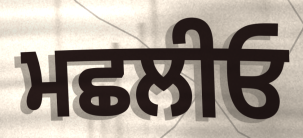
ਮਛਲੀਓ